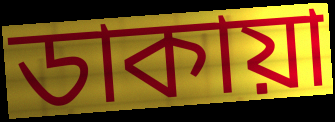
ডাকায়া